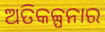
ଅତିକଳ୍ପନାର